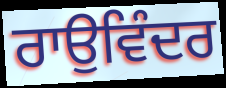
ਰਾਉਵਿੰਦਰ